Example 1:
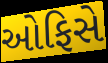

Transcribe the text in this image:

ઓફિસે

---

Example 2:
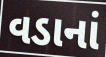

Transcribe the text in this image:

વડાનાં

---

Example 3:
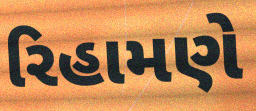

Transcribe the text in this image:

રિહામણે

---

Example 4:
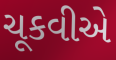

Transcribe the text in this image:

ચૂકવીએ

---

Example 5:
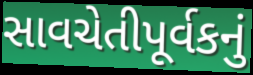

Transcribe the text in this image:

સાવચેતીપૂર્વકનું